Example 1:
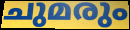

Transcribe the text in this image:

ചുമരും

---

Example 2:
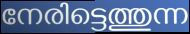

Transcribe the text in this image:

നേരിട്ടെത്തുന്ന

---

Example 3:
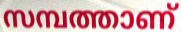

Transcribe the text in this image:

സമ്പത്താണ്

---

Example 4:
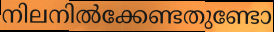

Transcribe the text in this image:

നിലനിൽക്കേണ്ടതുണ്ടോ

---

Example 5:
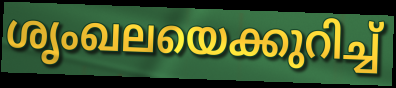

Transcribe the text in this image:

ശൃംഖലയെക്കുറിച്ച്